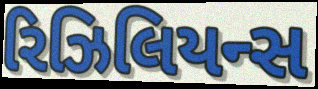
રિઝિલિયન્સ